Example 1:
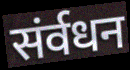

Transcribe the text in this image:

संर्वधन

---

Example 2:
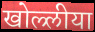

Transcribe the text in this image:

खोल्लीया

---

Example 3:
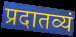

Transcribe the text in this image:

प्रदातव्यं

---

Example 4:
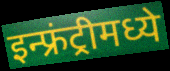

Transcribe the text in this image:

इन्फ्रंट्रीमध्ये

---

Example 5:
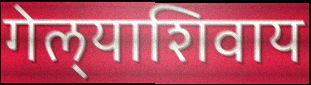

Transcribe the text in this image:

गेल्याशिवाय